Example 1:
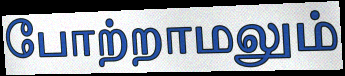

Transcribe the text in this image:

போற்றாமலும்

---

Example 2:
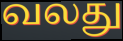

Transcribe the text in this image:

வலது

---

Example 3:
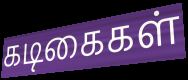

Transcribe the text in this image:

கடிகைகள்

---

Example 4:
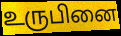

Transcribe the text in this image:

உருபினை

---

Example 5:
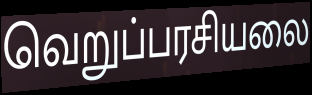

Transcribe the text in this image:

வெறுப்பரசியலை